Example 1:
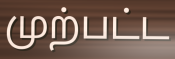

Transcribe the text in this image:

முற்பட்ட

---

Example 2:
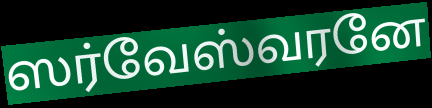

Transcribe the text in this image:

ஸர்வேஸ்வரனே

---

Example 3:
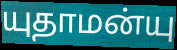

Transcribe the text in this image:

யுதாமன்யு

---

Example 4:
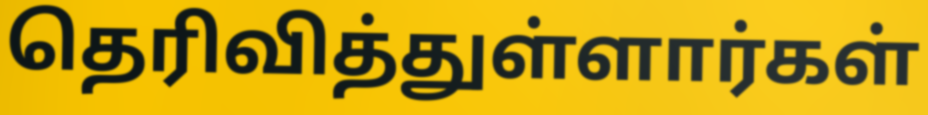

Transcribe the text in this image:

தெரிவித்துள்ளார்கள்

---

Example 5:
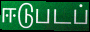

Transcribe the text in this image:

ஈடுபடப்